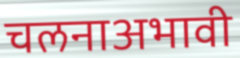
चलनाअभावी